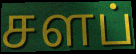
சளப்